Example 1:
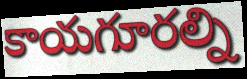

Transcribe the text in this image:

కాయగూరల్ని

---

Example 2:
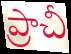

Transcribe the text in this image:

ప్రాచీ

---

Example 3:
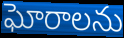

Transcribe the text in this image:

ఘోరాలను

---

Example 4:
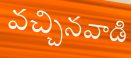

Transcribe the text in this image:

వచ్చినవాడి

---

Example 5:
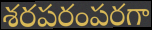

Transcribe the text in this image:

శరపరంపరగా